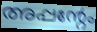
അപ്പന്റേം